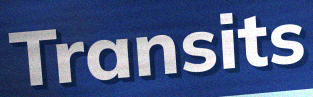
Transits